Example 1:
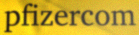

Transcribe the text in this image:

pfizercom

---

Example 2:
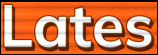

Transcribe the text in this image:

Lates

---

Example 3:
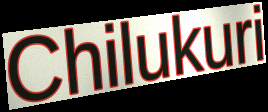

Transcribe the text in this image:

Chilukuri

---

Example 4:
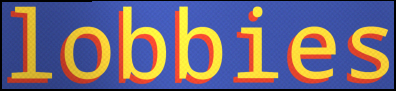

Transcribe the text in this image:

lobbies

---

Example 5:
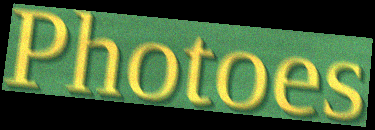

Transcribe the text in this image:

Photoes